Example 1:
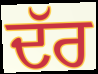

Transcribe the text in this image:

ਦੱਰ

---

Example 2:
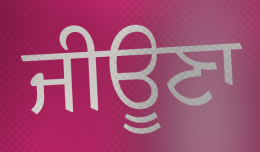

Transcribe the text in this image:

ਜੀਊਣਾ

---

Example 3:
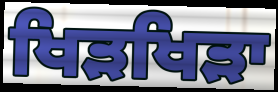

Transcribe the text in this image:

ਖਿੜਖਿੜਾ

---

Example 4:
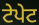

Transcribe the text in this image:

ਟੇਪੇਟ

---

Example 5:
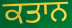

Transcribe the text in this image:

ਕਤਾਨ